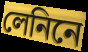
লেনিনে